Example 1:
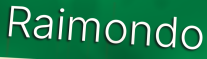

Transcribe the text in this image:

Raimondo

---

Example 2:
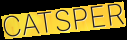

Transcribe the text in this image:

CATSPER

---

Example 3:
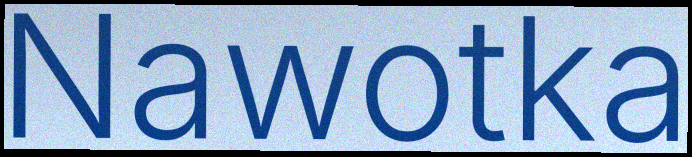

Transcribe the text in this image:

Nawotka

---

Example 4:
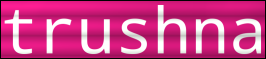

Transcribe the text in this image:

trushna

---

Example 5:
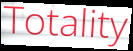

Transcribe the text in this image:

Totality